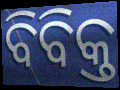
ବିବିକ୍ତ